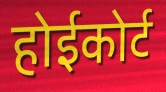
होईकोर्ट